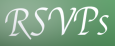
RSVPs